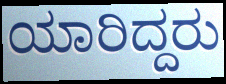
ಯಾರಿದ್ದರು